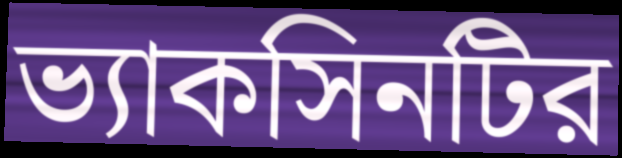
ভ্যাকসিনটির